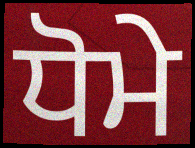
ਧੋਮੇ